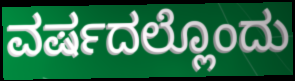
ವರ್ಷದಲ್ಲೊಂದು